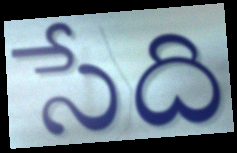
సేది